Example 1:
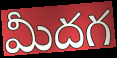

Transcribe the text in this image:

మీదగ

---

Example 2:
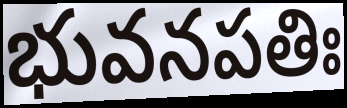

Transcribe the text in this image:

భువనపతిః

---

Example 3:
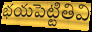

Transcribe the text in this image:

భయపెట్టితివి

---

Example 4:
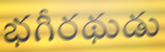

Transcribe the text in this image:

భగీరథుడు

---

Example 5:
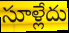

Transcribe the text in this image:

సూళ్లేదు